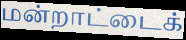
மன்றாட்டைக்